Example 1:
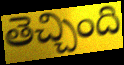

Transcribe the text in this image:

తెచ్చింది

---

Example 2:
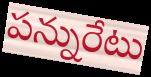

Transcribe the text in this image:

పన్నురేటు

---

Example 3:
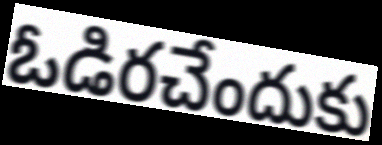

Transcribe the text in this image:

ఓడిరచేందుకు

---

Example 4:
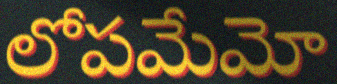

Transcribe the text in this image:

లోపమేమో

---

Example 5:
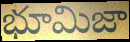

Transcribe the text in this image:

భూమిజా